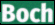
Boch